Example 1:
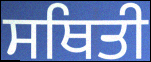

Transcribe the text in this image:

ਸਥਿਤੀ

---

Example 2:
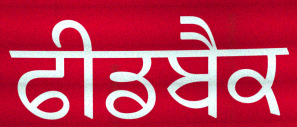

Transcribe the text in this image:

ਫੀਡਬੈਕ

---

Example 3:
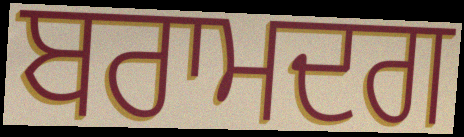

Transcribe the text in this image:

ਬਰਾਮਦਗ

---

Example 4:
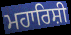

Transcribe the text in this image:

ਮਹਾਰਿਸ਼ੀ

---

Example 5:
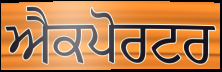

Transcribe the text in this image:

ਐਕਪੋਰਟਰ